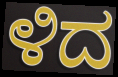
ಳಿದ